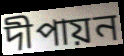
দীপায়ন